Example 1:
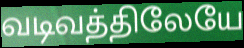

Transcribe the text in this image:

வடிவத்திலேயே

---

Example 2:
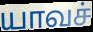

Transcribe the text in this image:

யாவச்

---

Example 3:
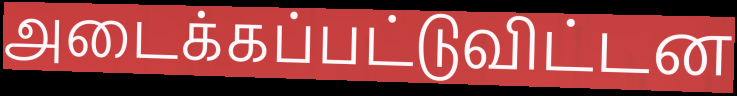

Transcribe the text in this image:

அடைக்கப்பட்டுவிட்டன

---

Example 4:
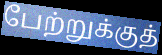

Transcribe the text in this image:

பேற்றுக்குத்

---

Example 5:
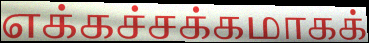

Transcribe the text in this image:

எக்கச்சக்கமாகக்